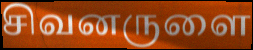
சிவனருளை